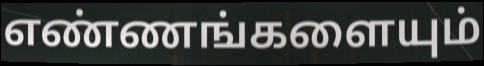
எண்ணங்களையும்